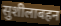
सुशीलाबहन